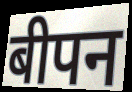
बीपन